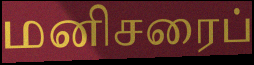
மனிசரைப்